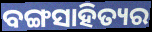
ବଙ୍ଗସାହିତ୍ୟର